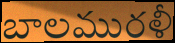
బాలమురళీ